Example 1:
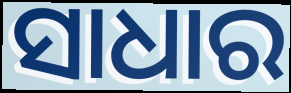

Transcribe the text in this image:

ସାଧାର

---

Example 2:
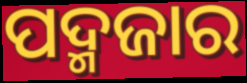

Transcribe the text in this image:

ପଦ୍ମଜାର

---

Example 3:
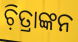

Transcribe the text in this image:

ଚ଼ିତ୍ରାଙ୍କନ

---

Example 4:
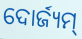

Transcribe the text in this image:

ଦୋର୍ଜ୍ୟମ୍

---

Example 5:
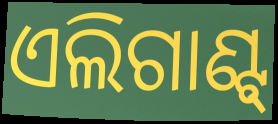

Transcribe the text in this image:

ଏଲିଗାଣ୍ଟ୍